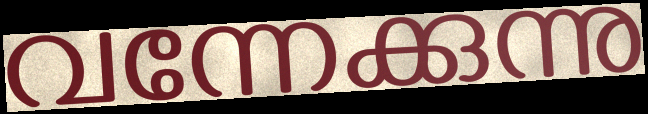
വന്നേക്കുന്നു